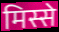
मिस्से